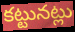
కట్టునట్లు